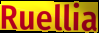
Ruellia